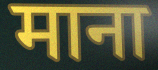
माना